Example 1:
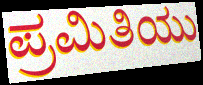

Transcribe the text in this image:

ಪ್ರಮಿತಿಯು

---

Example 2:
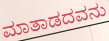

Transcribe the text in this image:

ಮಾತಾಡದವನು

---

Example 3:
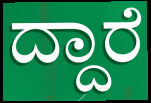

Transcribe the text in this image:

ದ್ದಾರೆ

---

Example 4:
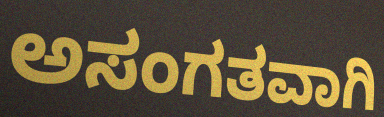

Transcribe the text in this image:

ಅಸಂಗತವಾಗಿ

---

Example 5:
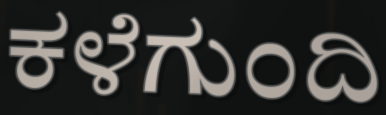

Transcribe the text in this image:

ಕಳೆಗುಂದಿ